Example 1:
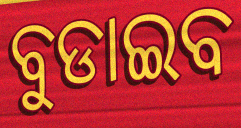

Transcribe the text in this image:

ବୁଡାଇବ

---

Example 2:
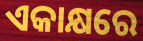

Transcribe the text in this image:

ଏକାକ୍ଷରେ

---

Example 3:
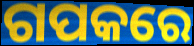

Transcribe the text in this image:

ଗପକରେ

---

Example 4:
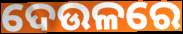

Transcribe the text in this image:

ଦେଉଳରେ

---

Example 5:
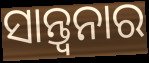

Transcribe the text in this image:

ସାନ୍ତ୍ବନାର